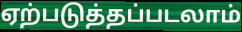
ஏற்படுத்தப்படலாம்